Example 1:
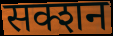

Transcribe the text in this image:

सक्शन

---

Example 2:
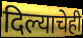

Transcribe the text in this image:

दिल्याचेही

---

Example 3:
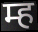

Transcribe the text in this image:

म्ह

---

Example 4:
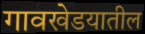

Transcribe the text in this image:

गावखेडयातील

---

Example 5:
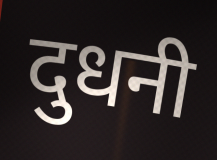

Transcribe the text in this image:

दुधनी